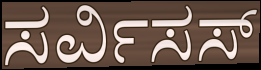
ಸರ್ವಿಸಸ್